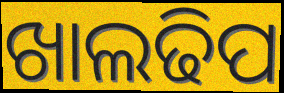
ଖାଲଢିପ